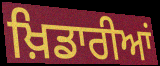
ਖ਼ਿਡਾਰੀਆਂ